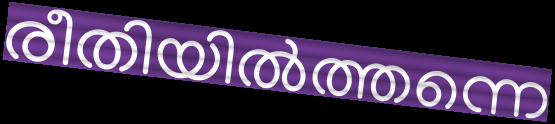
രീതിയിൽത്തന്നെ